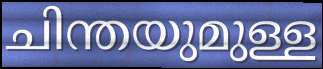
ചിന്തയുമുള്ള